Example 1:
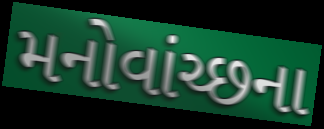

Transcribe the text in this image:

મનોવાંચ્છના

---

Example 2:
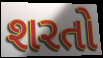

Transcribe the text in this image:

શરતો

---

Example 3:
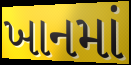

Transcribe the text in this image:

ખાનમાં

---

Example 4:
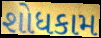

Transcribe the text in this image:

શોધકામ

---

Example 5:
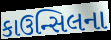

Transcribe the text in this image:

કાઉન્સિલના